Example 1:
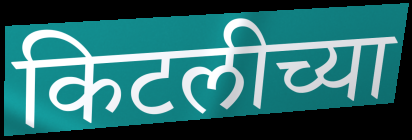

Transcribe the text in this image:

किटलीच्या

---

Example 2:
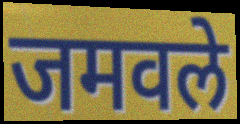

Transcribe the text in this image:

जमवले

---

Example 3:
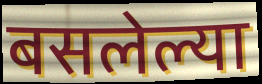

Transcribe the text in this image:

बसलेल्या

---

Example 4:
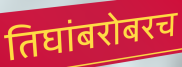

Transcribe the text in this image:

तिघांबरोबरच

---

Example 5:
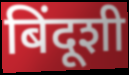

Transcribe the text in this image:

बिंदूशी